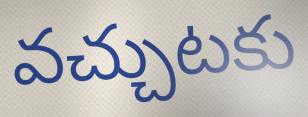
వచ్చుటకు